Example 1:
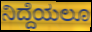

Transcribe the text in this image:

ನಿದ್ದೆಯಲೂ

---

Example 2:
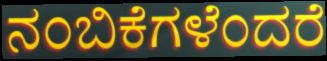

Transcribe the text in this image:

ನಂಬಿಕೆಗಳೆಂದರೆ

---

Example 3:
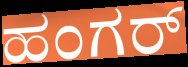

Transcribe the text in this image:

ಹಂಗರ್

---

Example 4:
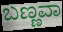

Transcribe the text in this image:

ಬಣ್ಣವಾ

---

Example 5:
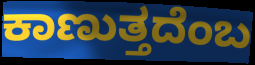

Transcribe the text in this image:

ಕಾಣುತ್ತದೆಂಬ